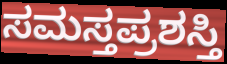
ಸಮಸ್ತಪ್ರಶಸ್ತಿ